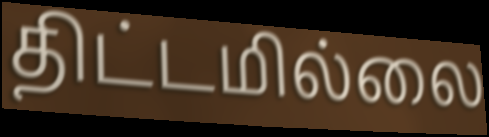
திட்டமில்லை